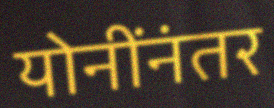
योनींनंतर